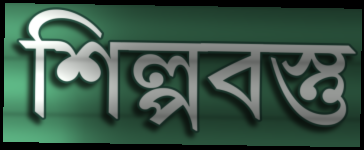
শিল্পবস্তু